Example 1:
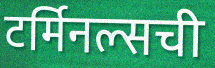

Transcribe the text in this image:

टर्मिनल्सची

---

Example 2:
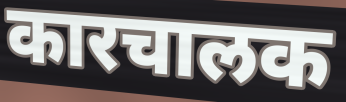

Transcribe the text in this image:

कारचालक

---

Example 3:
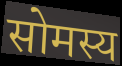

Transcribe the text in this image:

सोमस्य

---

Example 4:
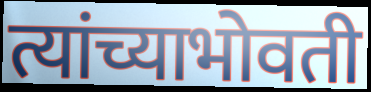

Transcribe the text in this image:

त्यांच्याभोवती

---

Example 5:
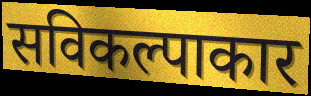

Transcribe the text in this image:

सविकल्पाकार